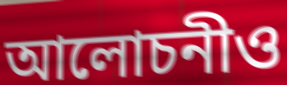
আলোচনীও